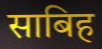
साबिह